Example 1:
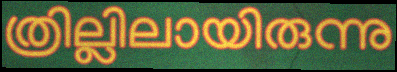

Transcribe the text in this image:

ത്രില്ലിലായിരുന്നു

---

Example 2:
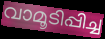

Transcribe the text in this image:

വാമൂടിപ്പിച്ച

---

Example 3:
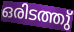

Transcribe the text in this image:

ഒരിടത്തു്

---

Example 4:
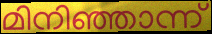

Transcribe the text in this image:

മിനിഞ്ഞാന്ന്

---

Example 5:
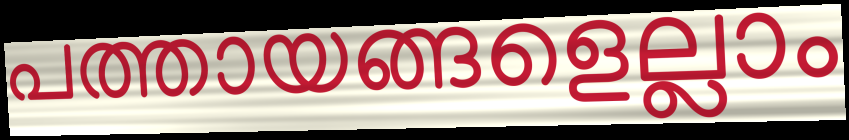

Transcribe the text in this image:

പത്തായങ്ങളെല്ലാം